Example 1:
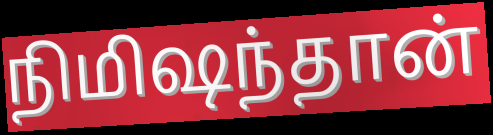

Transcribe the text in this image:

நிமிஷந்தான்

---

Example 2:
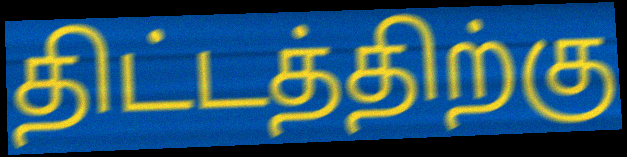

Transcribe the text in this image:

திட்டத்திற்கு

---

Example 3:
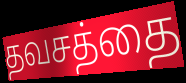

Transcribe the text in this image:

தவசத்தை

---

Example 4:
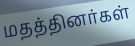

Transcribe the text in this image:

மதத்தினர்கள்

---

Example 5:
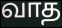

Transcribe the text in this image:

வாத